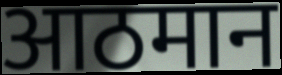
आठमान